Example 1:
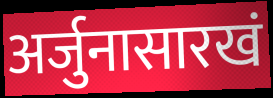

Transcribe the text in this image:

अर्जुनासारखं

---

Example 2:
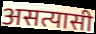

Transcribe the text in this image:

असत्यासी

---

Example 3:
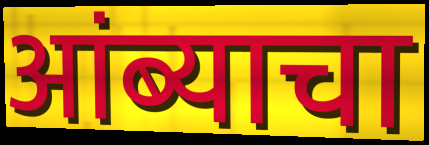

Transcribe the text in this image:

आंब्याचा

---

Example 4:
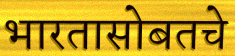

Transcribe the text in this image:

भारतासोबतचे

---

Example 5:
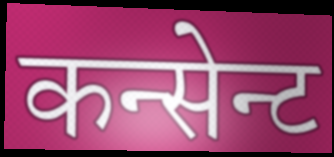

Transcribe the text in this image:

कन्सेन्ट